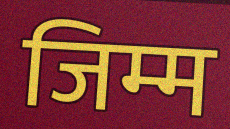
जिम्म